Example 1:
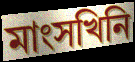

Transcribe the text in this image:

মাংসখিনি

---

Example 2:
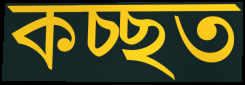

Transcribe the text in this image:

কচ্ছত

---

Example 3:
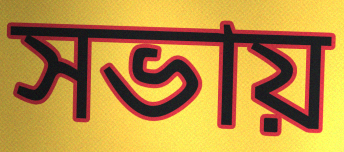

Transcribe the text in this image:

সভায়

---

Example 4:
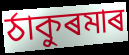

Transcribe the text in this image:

ঠাকুৰমাৰ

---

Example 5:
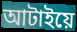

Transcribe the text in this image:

আটাইয়ে